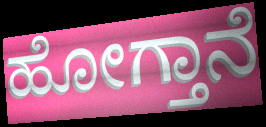
ಹೋಗ್ತಾನೆ